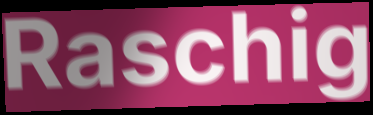
Raschig